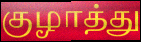
குழாத்து